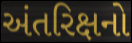
અંતરિક્ષનો